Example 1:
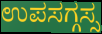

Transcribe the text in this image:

ಉಪಸಗ್ಗಸ್ಸ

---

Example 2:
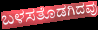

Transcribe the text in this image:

ಬಳಸತೊಡಗಿದವು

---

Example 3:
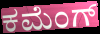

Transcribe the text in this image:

ಕಮೆಂಗ್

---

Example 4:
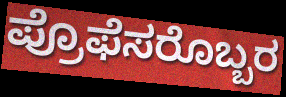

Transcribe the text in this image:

ಪ್ರೊಫೆಸರೊಬ್ಬರ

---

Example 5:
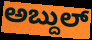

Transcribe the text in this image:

ಅಬ್ದುಲ್